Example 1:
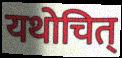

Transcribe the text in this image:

यथोचित्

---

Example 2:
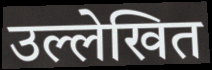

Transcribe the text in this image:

उल्‍लेखित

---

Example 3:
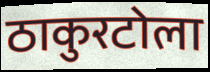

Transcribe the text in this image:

ठाकुरटोला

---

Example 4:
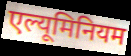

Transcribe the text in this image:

एल्यूमिनियम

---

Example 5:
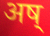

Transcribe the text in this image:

अष्